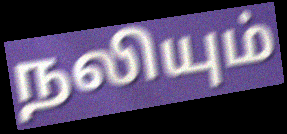
நலியும்